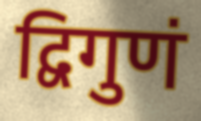
द्विगुणं